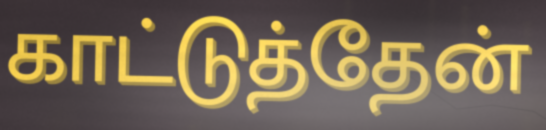
காட்டுத்தேன்